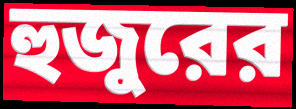
হুজুরের